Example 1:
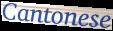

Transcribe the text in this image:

Cantonese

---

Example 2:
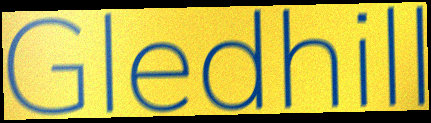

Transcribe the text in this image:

Gledhill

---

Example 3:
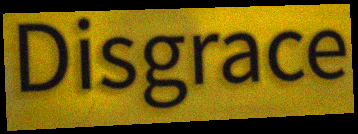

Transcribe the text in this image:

Disgrace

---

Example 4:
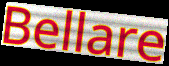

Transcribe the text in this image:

Bellare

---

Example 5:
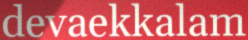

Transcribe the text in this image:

devaekkalam